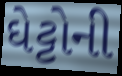
ઘેટ્ટોની